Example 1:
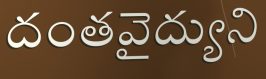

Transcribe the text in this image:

దంతవైద్యుని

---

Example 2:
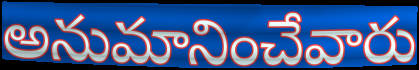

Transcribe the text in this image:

అనుమానించేవారు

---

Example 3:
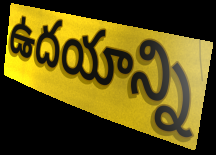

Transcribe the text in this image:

ఉదయాన్ని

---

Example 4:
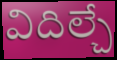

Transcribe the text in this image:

విదిల్చే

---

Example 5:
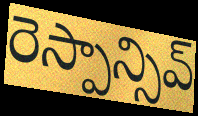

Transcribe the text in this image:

రెస్పాన్సివ్